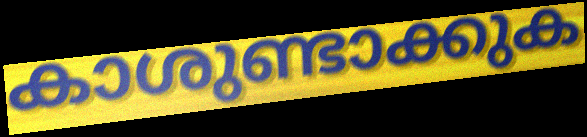
കാശുണ്ടാക്കുക